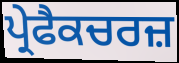
ਪ੍ਰੇਫੈਕਚਰਜ਼